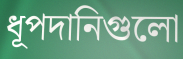
ধূপদানিগুলো